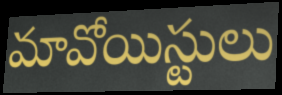
మావోయిస్టులు